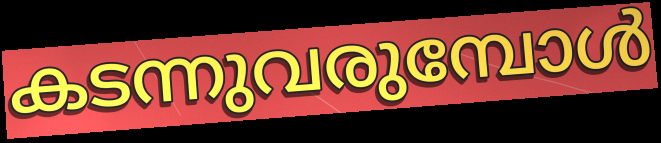
കടന്നുവരുമ്പോൾ